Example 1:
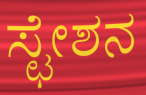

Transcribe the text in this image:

ಸ್ಟೇಶನ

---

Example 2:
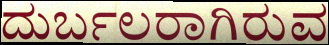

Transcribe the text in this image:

ದುರ್ಬಲರಾಗಿರುವ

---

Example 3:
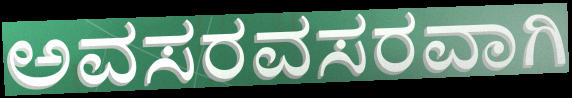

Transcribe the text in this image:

ಅವಸರವಸರವಾಗಿ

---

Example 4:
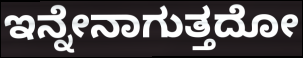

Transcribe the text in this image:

ಇನ್ನೇನಾಗುತ್ತದೋ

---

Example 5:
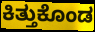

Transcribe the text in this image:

ಕಿತ್ತುಕೊಂಡ